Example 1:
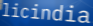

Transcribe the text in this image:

licindia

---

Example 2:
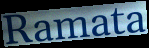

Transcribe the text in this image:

Ramata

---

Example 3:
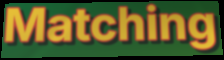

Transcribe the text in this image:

Matching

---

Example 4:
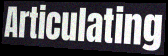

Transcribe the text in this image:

Articulating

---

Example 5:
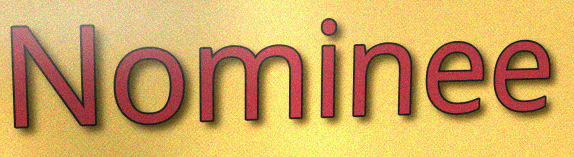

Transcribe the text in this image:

Nominee